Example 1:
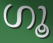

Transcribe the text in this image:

ഗൂ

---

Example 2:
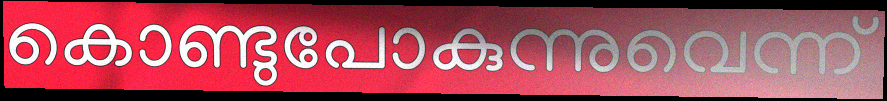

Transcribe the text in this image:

കൊണ്ടുപോകുന്നുവെന്ന്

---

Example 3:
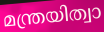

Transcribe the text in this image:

മന്ത്രയിത്വാ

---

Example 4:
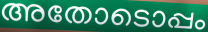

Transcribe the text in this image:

അതോടൊപ്പം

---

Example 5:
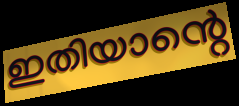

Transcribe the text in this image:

ഇതിയാന്റെ